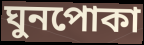
ঘুনপোকা